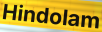
Hindolam